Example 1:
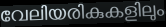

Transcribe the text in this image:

വേലിയരികുകളിലും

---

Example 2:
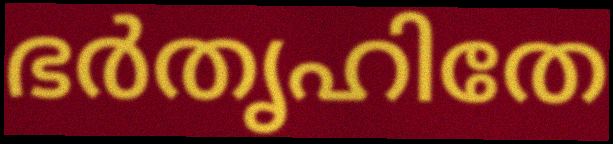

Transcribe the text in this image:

ഭർതൃഹിതേ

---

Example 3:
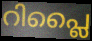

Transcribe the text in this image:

റിപ്ലൈ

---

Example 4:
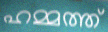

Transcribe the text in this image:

ഹമ്മത്ത്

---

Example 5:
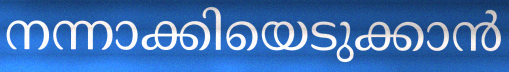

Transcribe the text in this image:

നന്നാക്കിയെടുക്കാൻ